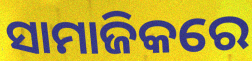
ସାମାଜିକରେ